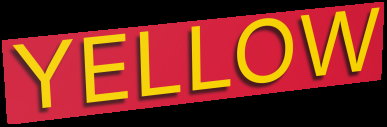
YELLOW